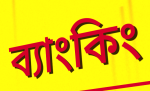
ব্যাংকিং